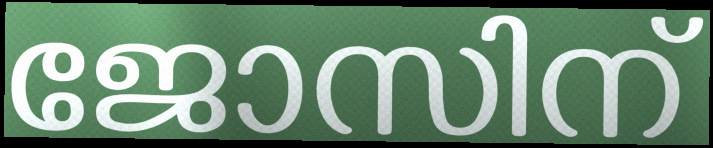
ജോസിന്